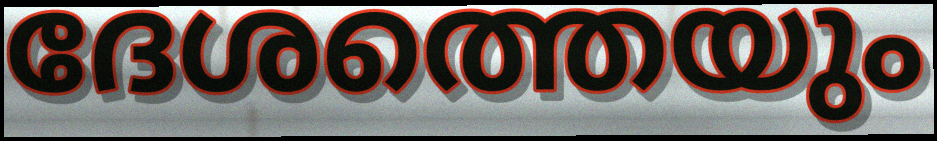
ദേശത്തെയും